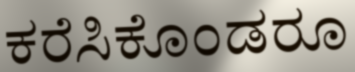
ಕರೆಸಿಕೊಂಡರೂ